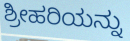
ಶ್ರೀಹರಿಯನ್ನು